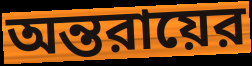
অন্তরায়ের